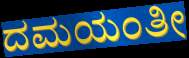
ದಮಯಂತೀ